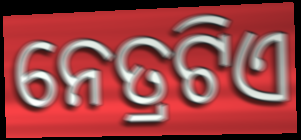
ନେତ୍ରଟିଏ